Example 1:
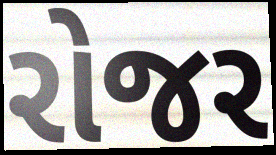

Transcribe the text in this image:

રોજર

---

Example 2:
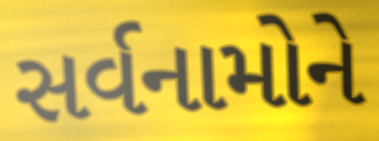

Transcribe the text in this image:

સર્વનામોને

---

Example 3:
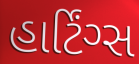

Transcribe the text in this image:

હાર્ટિંગ્સ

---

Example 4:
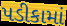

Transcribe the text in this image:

પડીકામાં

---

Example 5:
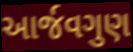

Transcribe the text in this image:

આર્જવગુણ